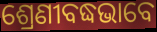
ଶ୍ରେଣୀବଦ୍ଧଭାବେ